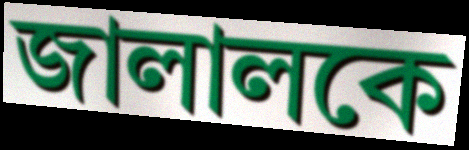
জালালকে